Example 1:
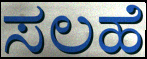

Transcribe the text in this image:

ಸಲಹೆ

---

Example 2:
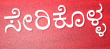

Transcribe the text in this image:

ಸೇರಿಕೊಳ್ಳ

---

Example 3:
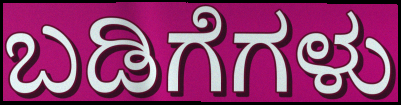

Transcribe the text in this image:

ಬಡಿಗೆಗಳು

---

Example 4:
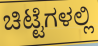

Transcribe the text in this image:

ಚಿಟ್ಟೆಗಳಲ್ಲಿ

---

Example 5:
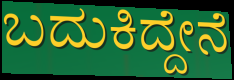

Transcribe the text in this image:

ಬದುಕಿದ್ದೇನೆ